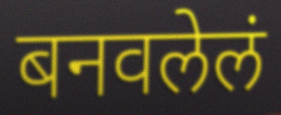
बनवलेलं